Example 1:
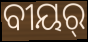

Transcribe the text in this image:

ବୀୟର୍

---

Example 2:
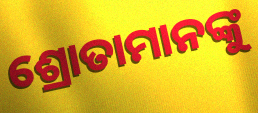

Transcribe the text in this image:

ଶ୍ରୋତାମାନଙ୍କୁ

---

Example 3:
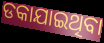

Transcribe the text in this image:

ଡକାଯାଇଥିବା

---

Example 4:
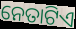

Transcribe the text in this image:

ନେତାଟିଏ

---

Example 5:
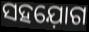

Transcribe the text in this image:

ସହଯ଼ୋଗ